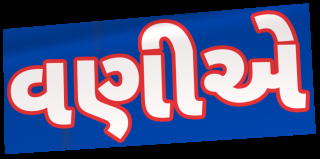
વણીએ